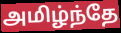
அமிழ்ந்தே